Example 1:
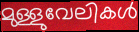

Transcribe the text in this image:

മുള്ളുവേലികൾ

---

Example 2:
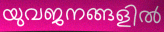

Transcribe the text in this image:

യുവജനങ്ങളിൽ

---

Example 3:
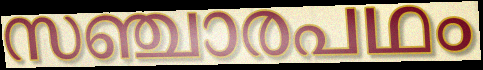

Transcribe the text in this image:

സഞ്ചാരപഥം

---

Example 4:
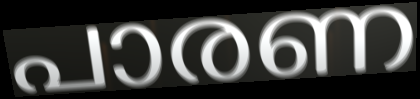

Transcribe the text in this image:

പാരണ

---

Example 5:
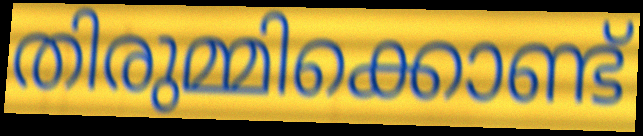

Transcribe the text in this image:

തിരുമ്മിക്കൊണ്ട്